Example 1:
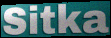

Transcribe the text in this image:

Sitka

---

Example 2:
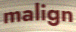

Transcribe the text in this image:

malign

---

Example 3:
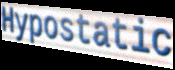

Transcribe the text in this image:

Hypostatic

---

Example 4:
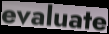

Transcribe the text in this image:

evaluate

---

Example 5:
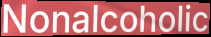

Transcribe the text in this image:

Nonalcoholic